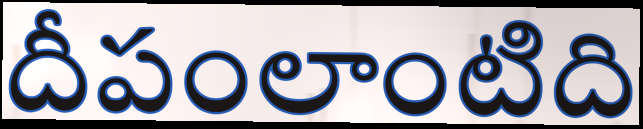
దీపంలాంటిది